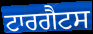
ਟਾਰਗੈਟਸ